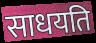
साधयति